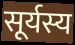
सूर्यस्य